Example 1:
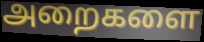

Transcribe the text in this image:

அறைகளை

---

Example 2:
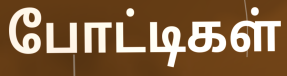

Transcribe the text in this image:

போட்டிகள்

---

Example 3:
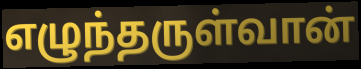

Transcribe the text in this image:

எழுந்தருள்வான்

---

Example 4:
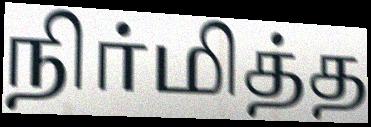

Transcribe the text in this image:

நிர்மித்த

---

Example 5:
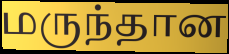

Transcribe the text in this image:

மருந்தான